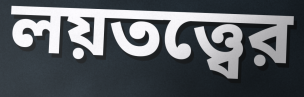
লয়তত্ত্বের